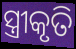
ସ୍ତ୍ରୀକୃତି